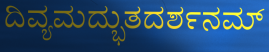
ದಿವ್ಯಮದ್ಭುತದರ್ಶನಮ್